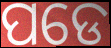
ପଡେ